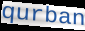
qurban